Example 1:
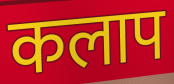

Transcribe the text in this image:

कलाप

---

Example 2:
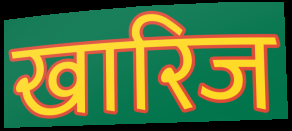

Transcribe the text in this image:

खारिज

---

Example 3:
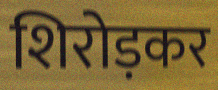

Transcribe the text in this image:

शिरोड़कर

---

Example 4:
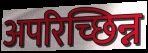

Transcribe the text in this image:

अपरिच्छिन्न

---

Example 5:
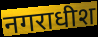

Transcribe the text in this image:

नगराधीश